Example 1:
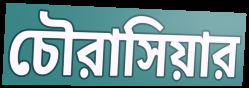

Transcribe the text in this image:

চৌরাসিয়ার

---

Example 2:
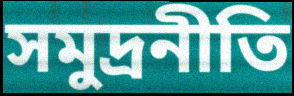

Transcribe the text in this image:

সমুদ্রনীতি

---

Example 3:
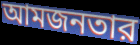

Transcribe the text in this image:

আমজনতার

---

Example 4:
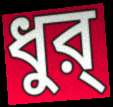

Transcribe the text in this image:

ধুর্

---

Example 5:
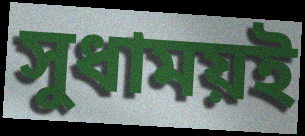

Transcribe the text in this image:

সুধাময়ই